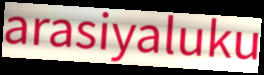
arasiyaluku